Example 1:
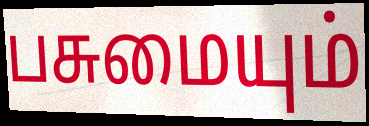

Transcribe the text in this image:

பசுமையும்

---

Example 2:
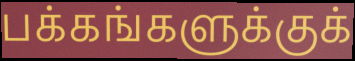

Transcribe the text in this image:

பக்கங்களுக்குக்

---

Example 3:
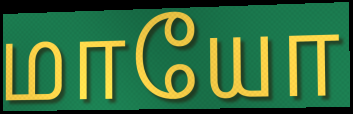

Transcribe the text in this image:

மாயோ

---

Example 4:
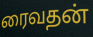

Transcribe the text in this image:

ரைவதன்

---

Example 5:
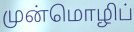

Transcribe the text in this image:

முன்மொழிப்